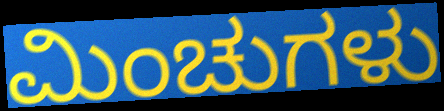
ಮಿಂಚುಗಳು